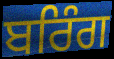
ਬਰਿੰਗ